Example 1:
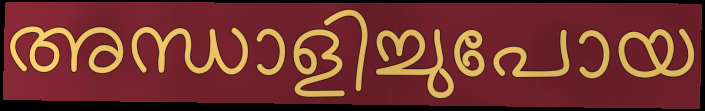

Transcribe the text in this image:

അന്ധാളിച്ചുപോയ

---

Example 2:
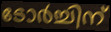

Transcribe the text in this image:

ടോർച്ചിന്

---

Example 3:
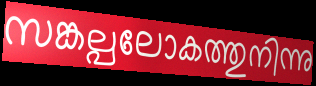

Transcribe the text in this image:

സങ്കല്പലോകത്തുനിന്നു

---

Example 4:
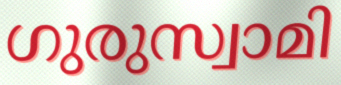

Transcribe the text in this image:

ഗുരുസ്വാമി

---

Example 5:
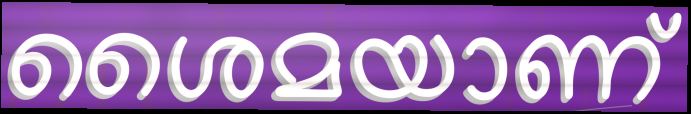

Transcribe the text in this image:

ശൈമയാണ്